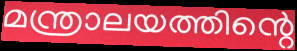
മന്ത്രാലയത്തിന്റെ